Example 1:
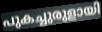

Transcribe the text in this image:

പുകച്ചുരുളായി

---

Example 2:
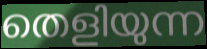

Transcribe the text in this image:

തെളിയുന്ന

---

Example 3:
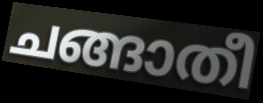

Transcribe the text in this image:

ചങ്ങാതീ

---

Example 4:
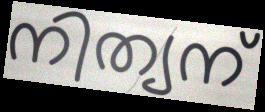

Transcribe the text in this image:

നിത്യന്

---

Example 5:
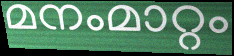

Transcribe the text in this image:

മനംമാറ്റം